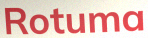
Rotuma